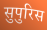
सुपुरिस